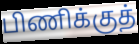
பிணிக்குத்